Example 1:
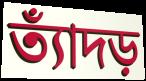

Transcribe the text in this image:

ত্যাঁদড়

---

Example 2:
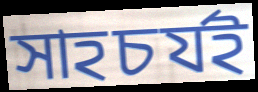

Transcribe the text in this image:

সাহচর্যই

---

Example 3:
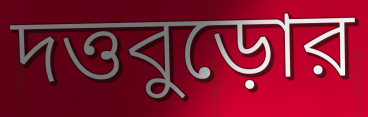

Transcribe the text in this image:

দত্তবুড়োর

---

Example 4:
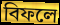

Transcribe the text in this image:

বিফলে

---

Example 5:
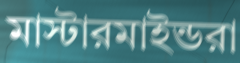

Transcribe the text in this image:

মাস্টারমাইন্ডরা